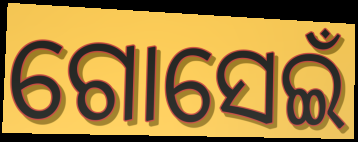
ଗୋସେଇଁ